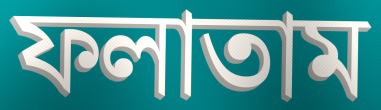
ফলাতাম